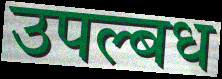
उपल्‍बध